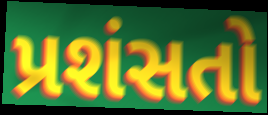
પ્રશંસતો